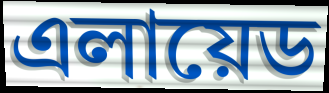
এলায়েড